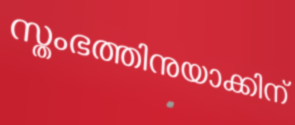
സ്തംഭത്തിനുയാക്കിന്